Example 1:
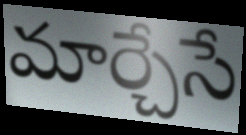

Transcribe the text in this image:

మార్చేసే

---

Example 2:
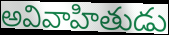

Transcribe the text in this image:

అవివాహితుడు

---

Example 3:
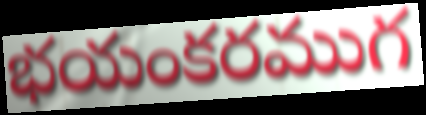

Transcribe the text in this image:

భయంకరముగ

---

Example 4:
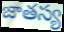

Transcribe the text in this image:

జాతస్య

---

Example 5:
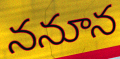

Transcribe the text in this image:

ననూన